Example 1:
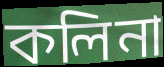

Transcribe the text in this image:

কলিনা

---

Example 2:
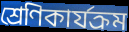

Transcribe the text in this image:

শ্রেণিকার্যক্রম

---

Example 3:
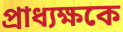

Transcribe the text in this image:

প্রাধ্যক্ষকে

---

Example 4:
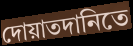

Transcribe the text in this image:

দোয়াতদানিতে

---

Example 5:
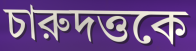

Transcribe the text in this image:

চারুদত্তকে